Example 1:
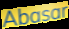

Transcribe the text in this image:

Abasar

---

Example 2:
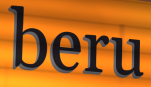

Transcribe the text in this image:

beru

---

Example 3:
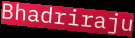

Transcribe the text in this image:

Bhadriraju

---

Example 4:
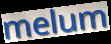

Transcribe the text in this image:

melum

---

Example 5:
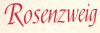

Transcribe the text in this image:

Rosenzweig